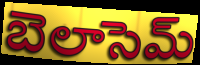
బెలాసెమ్